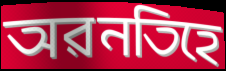
অৱনতিহে